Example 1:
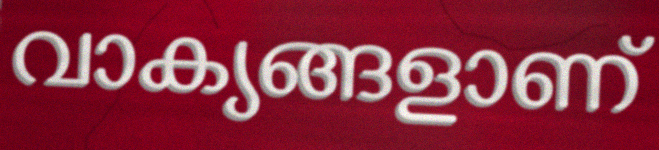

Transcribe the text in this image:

വാക്യങ്ങളാണ്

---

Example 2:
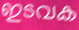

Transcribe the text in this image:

ഇടവക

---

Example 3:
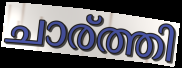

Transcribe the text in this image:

ചാര്ത്തി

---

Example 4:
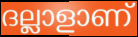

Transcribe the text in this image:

ദല്ലാളാണ്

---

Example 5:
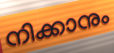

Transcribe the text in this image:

നിക്കാനും